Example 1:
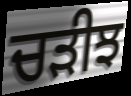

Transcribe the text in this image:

ਚੜੀਝ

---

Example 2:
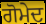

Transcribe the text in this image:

ਗੋਮੇਦ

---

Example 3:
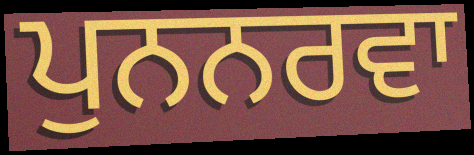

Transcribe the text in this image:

ਪੁਨਨਰਵਾ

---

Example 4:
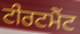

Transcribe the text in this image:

ਟੀਰਟਮੈਂਟ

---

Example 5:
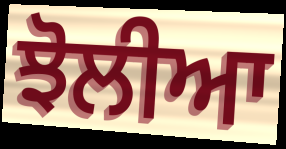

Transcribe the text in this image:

ਝੋਲੀਆ